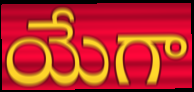
యేగా